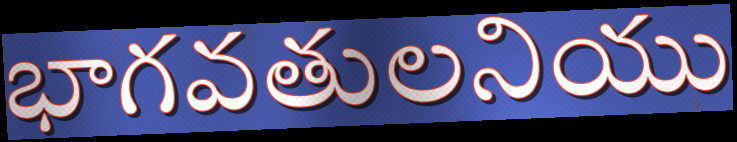
భాగవతులనియు